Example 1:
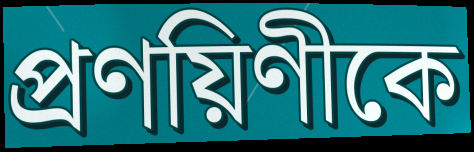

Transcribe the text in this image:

প্রণয়িণীকে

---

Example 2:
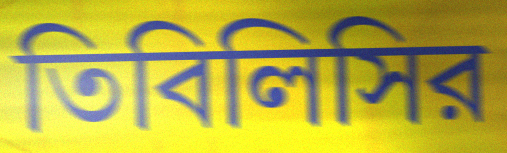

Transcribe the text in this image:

তিবিলিসির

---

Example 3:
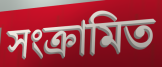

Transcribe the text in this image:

সংক্রামিত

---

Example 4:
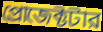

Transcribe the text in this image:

প্রোজেক্টটার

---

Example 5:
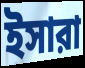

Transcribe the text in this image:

ইসারা